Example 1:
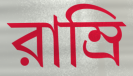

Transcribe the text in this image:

রাম্রি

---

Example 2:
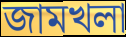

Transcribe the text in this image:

জামখলা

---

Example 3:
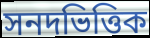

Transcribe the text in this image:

সনদভিত্তিক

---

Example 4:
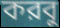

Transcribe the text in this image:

করবু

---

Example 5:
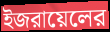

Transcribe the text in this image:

ইজরায়েলের